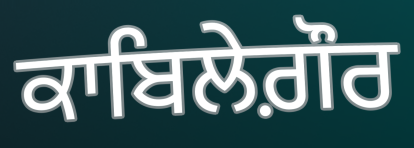
ਕਾਬਿਲੇਗ਼ੌਰ